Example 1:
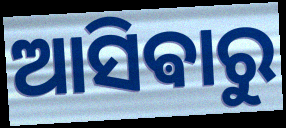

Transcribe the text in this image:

ଆସିଵାରୁ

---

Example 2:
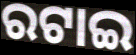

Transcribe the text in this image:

ରଟାଇ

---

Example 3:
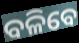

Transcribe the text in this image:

ବଳିବେ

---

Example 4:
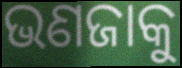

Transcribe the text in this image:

ଭଣଜାକୁ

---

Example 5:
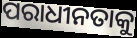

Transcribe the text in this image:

ପରାଧୀନତାକୁ